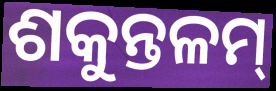
ଶକୁନ୍ତଳମ୍